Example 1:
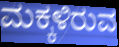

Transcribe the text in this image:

ಮಕ್ಕಳಿರುವ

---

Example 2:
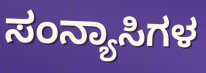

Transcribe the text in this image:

ಸಂನ್ಯಾಸಿಗಳ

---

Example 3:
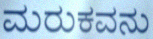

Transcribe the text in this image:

ಮರುಕವನು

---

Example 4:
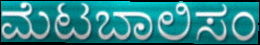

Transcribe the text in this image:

ಮೆಟಬಾಲಿಸಂ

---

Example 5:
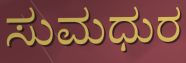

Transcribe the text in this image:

ಸುಮಧುರ